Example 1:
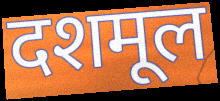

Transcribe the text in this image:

दशमूल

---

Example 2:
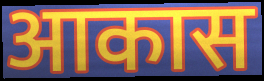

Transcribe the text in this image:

आकास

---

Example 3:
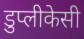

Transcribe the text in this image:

डुप्लीकेसी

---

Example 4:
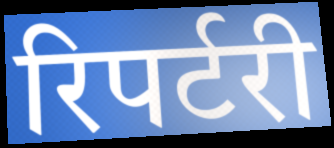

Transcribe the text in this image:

रिपर्टरी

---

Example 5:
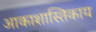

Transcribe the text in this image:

आकाशास्तिकाय